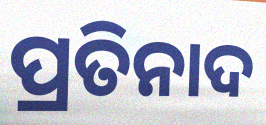
ପ୍ରତିନାଦ